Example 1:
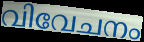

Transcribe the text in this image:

വിവേചനം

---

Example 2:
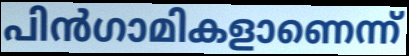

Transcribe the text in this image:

പിൻഗാമികളാണെന്ന്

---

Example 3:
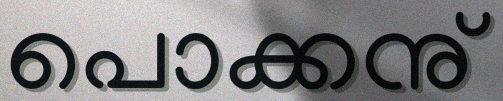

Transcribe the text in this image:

പൊക്കനു്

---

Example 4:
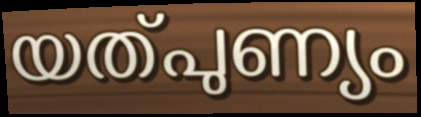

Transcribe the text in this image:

യത്പുണ്യം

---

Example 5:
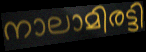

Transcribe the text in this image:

നാലാമിരട്ടി